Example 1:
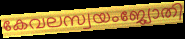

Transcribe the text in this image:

കേവലസ്വയംജ്യോതി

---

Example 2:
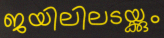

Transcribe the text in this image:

ജയിലിലടയ്ക്കും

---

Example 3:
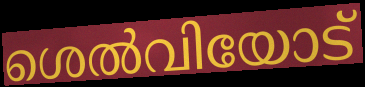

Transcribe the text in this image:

ശെൽവിയോട്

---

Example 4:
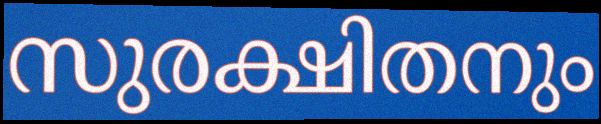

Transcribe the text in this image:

സുരക്ഷിതനും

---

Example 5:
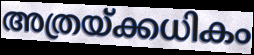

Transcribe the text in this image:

അത്രയ്ക്കധികം